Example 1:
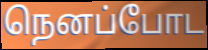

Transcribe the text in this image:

நெனப்போட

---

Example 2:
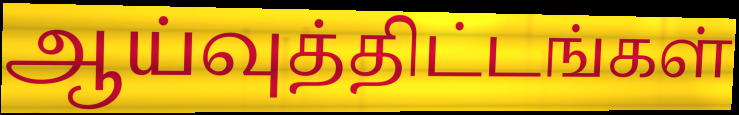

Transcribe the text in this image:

ஆய்வுத்திட்டங்கள்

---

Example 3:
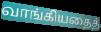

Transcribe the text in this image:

வாங்கியதைத்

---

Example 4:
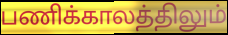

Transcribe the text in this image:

பணிக்காலத்திலும்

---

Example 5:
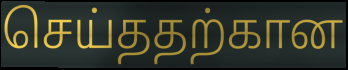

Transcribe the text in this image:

செய்ததற்கான